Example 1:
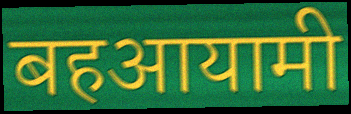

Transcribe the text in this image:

बहआयामी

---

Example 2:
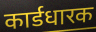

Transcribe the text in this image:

कार्डधारक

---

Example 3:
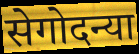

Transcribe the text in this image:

सेगोदन्या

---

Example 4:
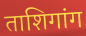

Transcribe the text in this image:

ताशिगांग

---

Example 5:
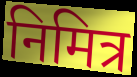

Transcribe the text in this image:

निमित्र